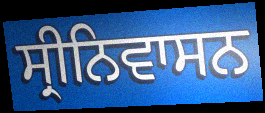
ਸ੍ਰੀਨਿਵਾਸਨ